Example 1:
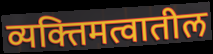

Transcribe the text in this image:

व्यक्तिमत्वातील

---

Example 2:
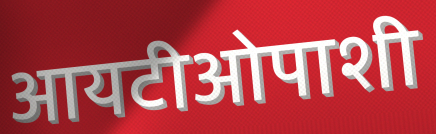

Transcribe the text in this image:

आयटीओपाशी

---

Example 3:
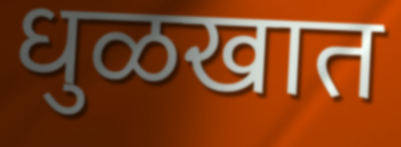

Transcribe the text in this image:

धुळखात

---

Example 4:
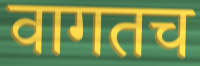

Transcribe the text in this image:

वागतच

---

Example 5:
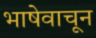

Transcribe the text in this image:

भाषेवाचून